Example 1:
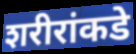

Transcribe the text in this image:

शरीरांकडे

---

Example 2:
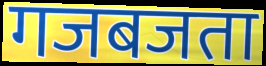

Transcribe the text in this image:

गजबजता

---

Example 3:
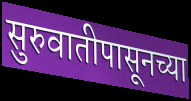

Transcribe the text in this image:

सुरुवातीपासूनच्या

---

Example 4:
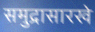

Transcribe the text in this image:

समुद्रासारखे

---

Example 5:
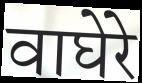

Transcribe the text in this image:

वाघेरे